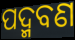
ପଦ୍ମବଣ